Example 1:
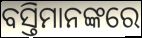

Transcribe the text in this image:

ବସ୍ତିମାନଙ୍କରେ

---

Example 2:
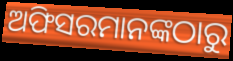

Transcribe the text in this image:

ଅଫିସରମାନଙ୍କଠାରୁ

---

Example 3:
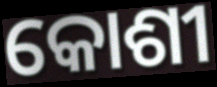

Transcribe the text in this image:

କୋଶୀ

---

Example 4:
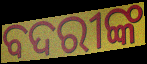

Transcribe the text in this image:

ବଦରୀଙ୍କ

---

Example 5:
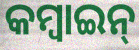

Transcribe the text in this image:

କମ୍ବାଇନ୍